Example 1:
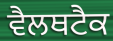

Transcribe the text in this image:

ਵੈਲਥਟੈਕ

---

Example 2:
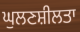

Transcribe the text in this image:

ਘੁਲਣਸ਼ੀਲਤਾ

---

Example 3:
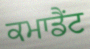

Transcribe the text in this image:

ਕਮਾਡੈਂਟ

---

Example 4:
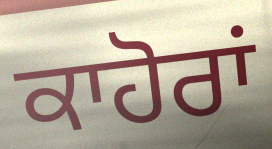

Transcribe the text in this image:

ਕਾਹੋਰਾਂ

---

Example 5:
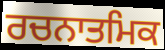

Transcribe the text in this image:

ਰਚਨਾਤਮਿਕ